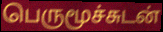
பெருமூச்சுடன்